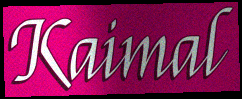
Kaimal